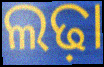
ଲଢ଼ା